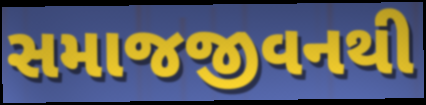
સમાજજીવનથી